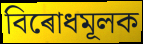
বিৰোধমূলক